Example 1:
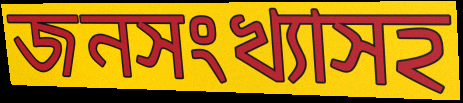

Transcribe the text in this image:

জনসংখ্যাসহ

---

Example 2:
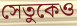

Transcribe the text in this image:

সেতুকেও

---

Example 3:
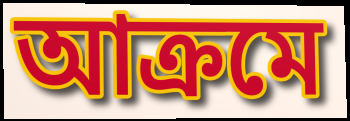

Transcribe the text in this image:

আক্রমে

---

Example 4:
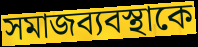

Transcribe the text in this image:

সমাজব্যবস্থাকে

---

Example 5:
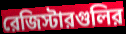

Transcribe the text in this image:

রেজিস্টারগুলির